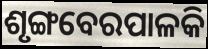
ଶୃଙ୍ଗବେରପାଳକି